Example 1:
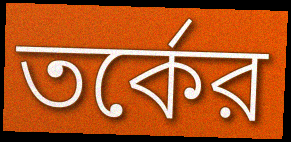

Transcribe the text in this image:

তর্কের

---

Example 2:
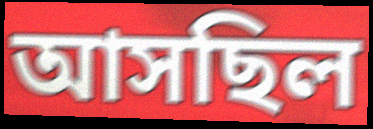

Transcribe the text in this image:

আসছিল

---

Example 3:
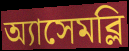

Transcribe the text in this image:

অ্যাসেমব্লি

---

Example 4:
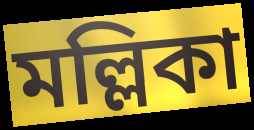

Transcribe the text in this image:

মল্লিকা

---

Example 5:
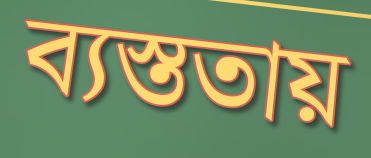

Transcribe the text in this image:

ব্যস্ততায়